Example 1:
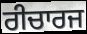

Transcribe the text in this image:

ਰੀਚਾਰਜ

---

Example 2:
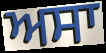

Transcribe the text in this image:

ਅਸਾ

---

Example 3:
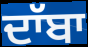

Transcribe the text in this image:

ਦਾੱਬਾ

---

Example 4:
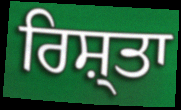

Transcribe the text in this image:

ਰਿਸ਼੍ਤਾ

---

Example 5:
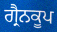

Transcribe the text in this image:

ਗ੍ਰੈਨਕੂਪ